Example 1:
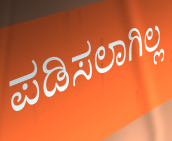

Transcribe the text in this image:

ಪಡಿಸಲಾಗಿಲ್ಲ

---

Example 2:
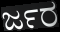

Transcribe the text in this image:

ರ್ಜರ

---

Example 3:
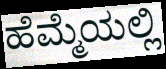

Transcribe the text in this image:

ಹೆಮ್ಮೆಯಲ್ಲಿ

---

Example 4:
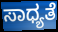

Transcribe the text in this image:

ಸಾಧ್ಯತೆ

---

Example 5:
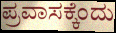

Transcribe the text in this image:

ಪ್ರವಾಸಕ್ಕೆಂದು